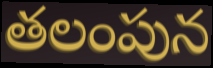
తలంపున